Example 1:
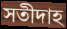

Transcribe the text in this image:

সতীদাহ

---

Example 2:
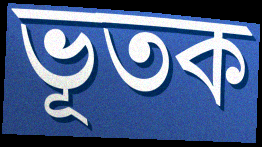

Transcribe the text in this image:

ভূতক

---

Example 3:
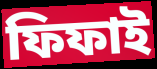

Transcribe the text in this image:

ফিফাই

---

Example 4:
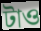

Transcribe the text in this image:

টাও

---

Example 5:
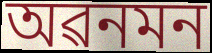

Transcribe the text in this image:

অৱনমন